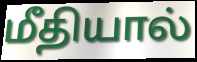
மீதியால்